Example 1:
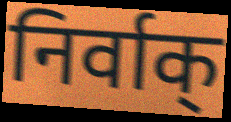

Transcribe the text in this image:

निर्वाक्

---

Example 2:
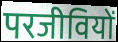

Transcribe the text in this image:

परजीवियों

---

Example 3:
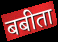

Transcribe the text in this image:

बबीता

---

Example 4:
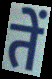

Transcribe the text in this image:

तें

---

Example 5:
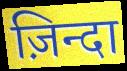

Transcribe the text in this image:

ज़िन्दा